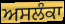
ਅਸਲੰਕਾ